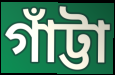
গাঁট্টা